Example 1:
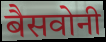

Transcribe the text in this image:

बैसवोनी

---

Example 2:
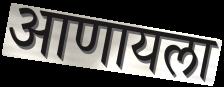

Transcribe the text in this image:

आणायला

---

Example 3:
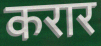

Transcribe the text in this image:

करार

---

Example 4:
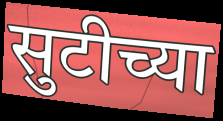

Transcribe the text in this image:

सुटीच्या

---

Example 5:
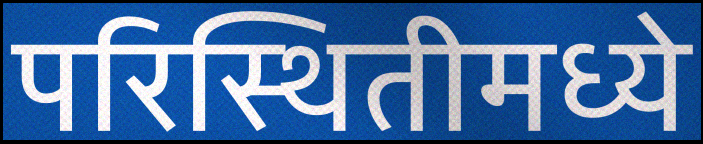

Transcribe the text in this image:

परिस्थितीमध्ये